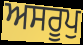
ਅਸਰੂਪੁ